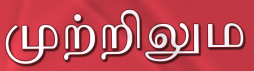
முற்றிலும